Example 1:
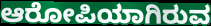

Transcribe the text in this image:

ಆರೋಪಿಯಾಗಿರುವ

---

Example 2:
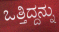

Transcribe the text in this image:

ಒತ್ತಿದ್ದನ್ನು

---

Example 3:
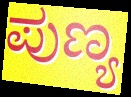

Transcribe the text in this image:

ಪುಣ್ಯ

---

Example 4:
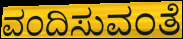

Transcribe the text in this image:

ವಂದಿಸುವಂತೆ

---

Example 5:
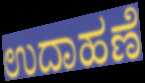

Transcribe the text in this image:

ಉದಾಹಣೆ